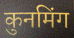
कुनमिंग